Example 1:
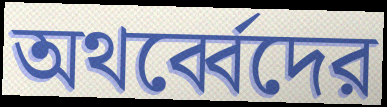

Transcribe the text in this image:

অথর্ব্বেদের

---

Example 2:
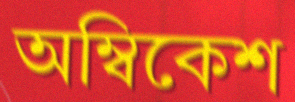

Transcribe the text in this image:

অম্বিকেশ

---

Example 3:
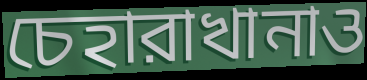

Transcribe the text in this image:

চেহারাখানাও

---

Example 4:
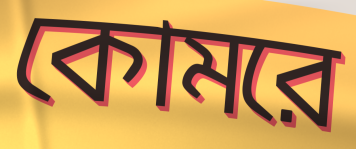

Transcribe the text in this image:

কোমরে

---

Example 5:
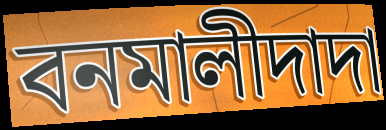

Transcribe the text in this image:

বনমালীদাদা